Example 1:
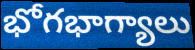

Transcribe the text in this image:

భోగభాగ్యాలు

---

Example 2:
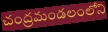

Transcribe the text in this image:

చంద్రమండలంలోని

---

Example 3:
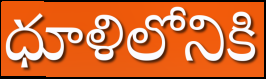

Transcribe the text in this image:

ధూళిలోనికి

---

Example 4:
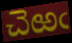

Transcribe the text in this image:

చెఱఁ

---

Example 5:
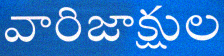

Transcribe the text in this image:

వారిజాక్షుల